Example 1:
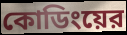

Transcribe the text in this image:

কোডিংয়ের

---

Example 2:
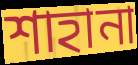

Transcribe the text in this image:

শাহানা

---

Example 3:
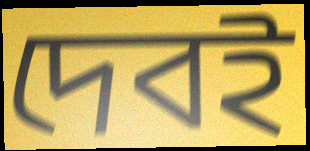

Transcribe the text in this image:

দেবই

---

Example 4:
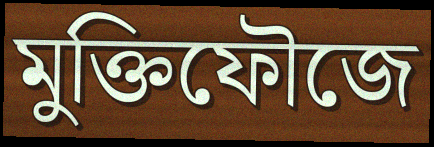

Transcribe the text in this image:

মুক্তিফৌজে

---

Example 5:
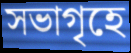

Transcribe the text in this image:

সভাগৃহে